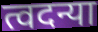
त्वदन्या